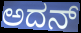
ಅದನ್